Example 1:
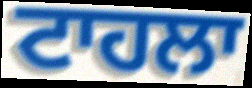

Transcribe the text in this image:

ਟਾਹਲਾ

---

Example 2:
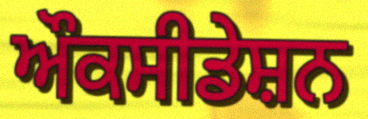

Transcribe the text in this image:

ਔਕਸੀਡੇਸ਼ਨ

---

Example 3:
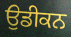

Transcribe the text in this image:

ਉਡੀਕਨ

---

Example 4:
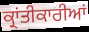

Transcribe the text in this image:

ਕ੍ਰਾਂਤੀਕਾਰੀਆਂ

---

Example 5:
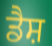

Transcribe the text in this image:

ਡੈਸ਼